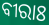
ବୀରାଃ